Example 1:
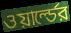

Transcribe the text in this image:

ওয়ার্ল্ডের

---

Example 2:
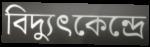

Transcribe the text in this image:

বিদ্যুৎকেন্দ্রে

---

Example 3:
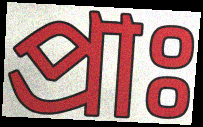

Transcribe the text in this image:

প্রাঃ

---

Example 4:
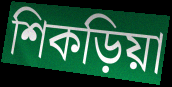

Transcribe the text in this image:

শিকড়িয়া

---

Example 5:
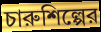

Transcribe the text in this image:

চারুশিল্পের